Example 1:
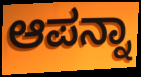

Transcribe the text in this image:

ಆಪನ್ನಾ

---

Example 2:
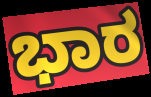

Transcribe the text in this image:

ಭಾರ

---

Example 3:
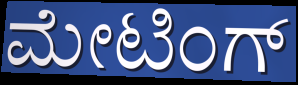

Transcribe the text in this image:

ಮೇಟಿಂಗ್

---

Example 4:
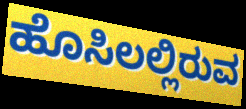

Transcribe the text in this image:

ಹೊಸಿಲಲ್ಲಿರುವ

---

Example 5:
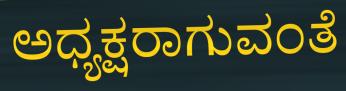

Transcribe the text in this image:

ಅಧ್ಯಕ್ಷರಾಗುವಂತೆ